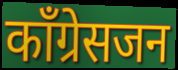
काँग्रेसजन